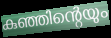
കുഞ്ഞിന്റെയും